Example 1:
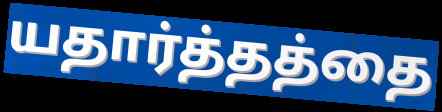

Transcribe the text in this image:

யதார்த்தத்தை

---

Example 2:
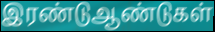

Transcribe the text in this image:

இரண்டுஆண்டுகள்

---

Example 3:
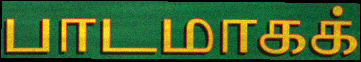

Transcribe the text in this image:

பாடமாகக்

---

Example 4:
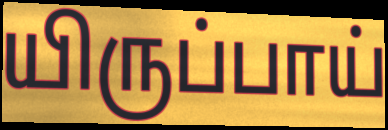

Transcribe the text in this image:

யிருப்பாய்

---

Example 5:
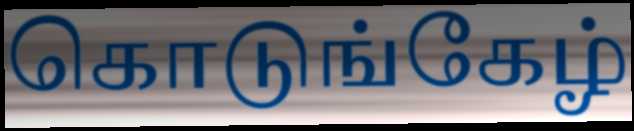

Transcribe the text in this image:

கொடுங்கேழ்